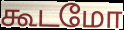
கூடமோ